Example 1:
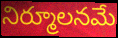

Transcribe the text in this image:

నిర్మూలనమే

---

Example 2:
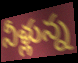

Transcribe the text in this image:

నీళ్లున్న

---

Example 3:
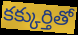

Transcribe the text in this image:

కక్కుర్తితో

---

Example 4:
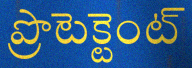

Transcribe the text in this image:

ప్రొటెక్టెంట్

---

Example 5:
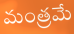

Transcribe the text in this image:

మంత్రమే